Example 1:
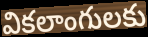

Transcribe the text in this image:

వికలాంగులకు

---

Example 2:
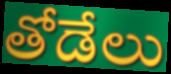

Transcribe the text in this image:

తోడేలు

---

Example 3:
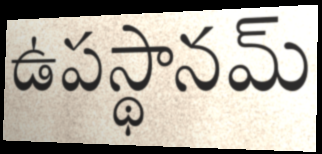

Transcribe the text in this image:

ఉపస్థానమ్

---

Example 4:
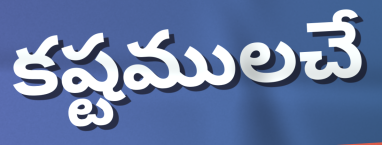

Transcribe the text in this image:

కష్టములచే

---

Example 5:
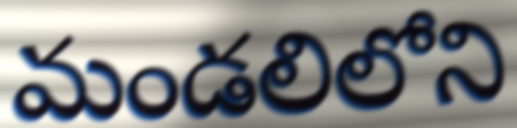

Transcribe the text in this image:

మండలిలోని